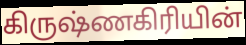
கிருஷ்ணகிரியின்